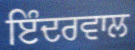
ਇੰਦਰਵਾਲ